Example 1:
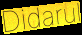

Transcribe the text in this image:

Didarul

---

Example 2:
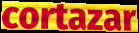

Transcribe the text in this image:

cortazar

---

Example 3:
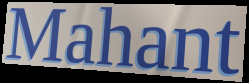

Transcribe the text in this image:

Mahant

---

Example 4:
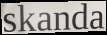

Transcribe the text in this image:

skanda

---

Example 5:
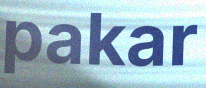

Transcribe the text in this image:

pakar